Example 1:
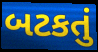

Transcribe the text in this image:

બટકતું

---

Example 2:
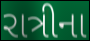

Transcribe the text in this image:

રાત્રીના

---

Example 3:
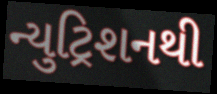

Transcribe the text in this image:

ન્યુટ્રિશનથી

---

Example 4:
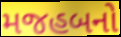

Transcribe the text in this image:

મજહબનો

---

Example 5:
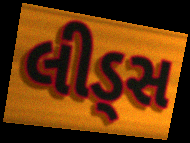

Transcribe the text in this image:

લીડ્સ